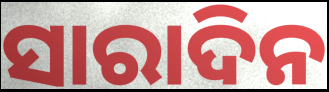
ସାରାଦିନ